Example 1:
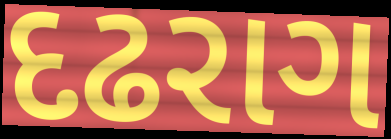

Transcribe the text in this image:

દઢરાગ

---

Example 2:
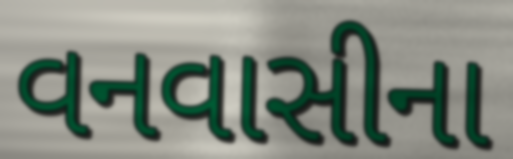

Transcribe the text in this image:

વનવાસીના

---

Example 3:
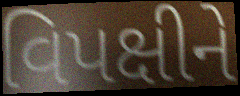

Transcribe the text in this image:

વિપક્ષીને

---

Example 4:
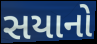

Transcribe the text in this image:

સયાનો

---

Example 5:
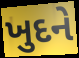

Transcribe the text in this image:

ખુદને